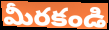
మీరకండి